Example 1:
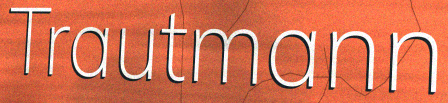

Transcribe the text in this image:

Trautmann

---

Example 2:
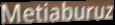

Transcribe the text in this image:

Metiaburuz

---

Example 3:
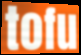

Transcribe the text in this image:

tofu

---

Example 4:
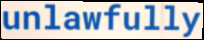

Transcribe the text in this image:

unlawfully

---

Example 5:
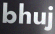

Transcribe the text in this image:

bhuj